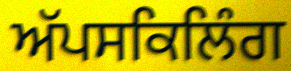
ਅੱਪਸਕਿਲਿੰਗ